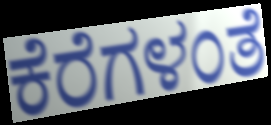
ಕೆರೆಗಳಂತೆ